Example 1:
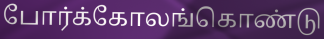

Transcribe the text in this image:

போர்க்கோலங்கொண்டு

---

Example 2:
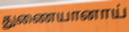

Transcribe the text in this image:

துணையானாய்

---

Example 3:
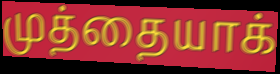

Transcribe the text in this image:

முத்தையாக்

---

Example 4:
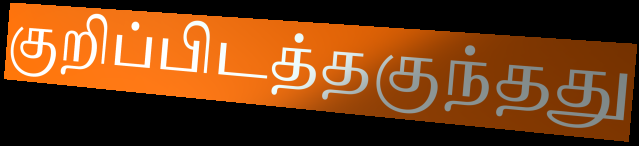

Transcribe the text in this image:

குறிப்பிடத்தகுந்தது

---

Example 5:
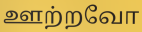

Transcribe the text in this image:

ஊற்றவோ